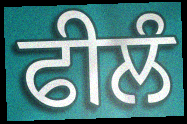
ਫੀਲੰ